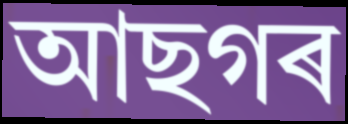
আছগৰ